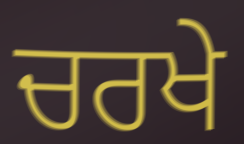
ਚਰਖੇ